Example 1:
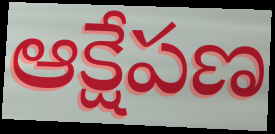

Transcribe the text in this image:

ఆక్షేపణ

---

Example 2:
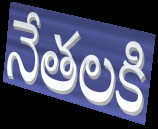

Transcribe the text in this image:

నేతలకి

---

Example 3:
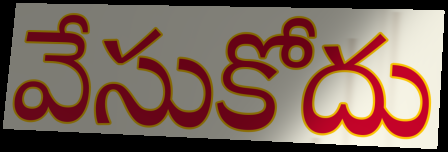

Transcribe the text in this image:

వేసుకోదు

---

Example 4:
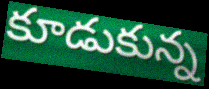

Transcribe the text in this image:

కూడుకున్న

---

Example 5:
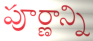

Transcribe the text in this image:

పూర్ణాన్ని